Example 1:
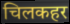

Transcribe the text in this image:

चिलकहर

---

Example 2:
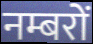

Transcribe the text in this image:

नम्बरों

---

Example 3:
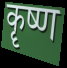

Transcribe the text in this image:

कॄष्ण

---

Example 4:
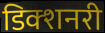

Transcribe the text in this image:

डिक्‍शनरी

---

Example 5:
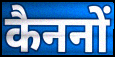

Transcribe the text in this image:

कैननों